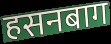
हसनबाग